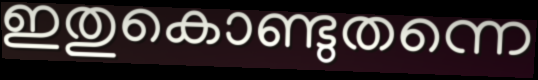
ഇതുകൊണ്ടുതന്നെ